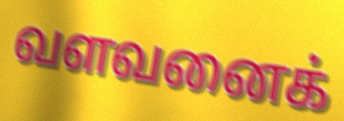
வளவனைக்